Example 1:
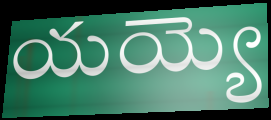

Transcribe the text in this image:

యయ్యె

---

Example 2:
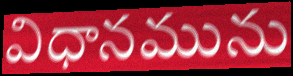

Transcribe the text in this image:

విధానమును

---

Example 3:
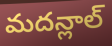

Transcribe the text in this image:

మదన్లాల్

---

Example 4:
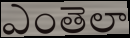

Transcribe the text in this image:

ఎంతెలా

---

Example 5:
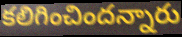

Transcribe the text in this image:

కలిగించిందన్నారు